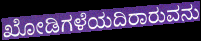
ಖೋಡಿಗಳೆಯದಿರಾರುವನು